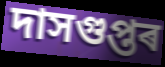
দাসগুপ্তৰ